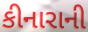
કીનારાની